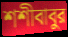
শশীবাবুর